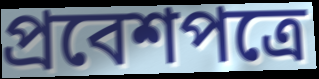
প্রবেশপত্রে